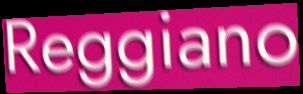
Reggiano